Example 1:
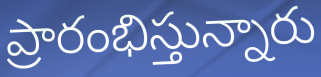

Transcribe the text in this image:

ప్రారంభిస్తున్నారు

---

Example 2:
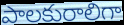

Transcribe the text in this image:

పాలకురాలిగా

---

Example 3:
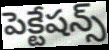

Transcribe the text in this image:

పెక్టేషన్స్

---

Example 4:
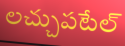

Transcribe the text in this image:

లచ్చుపటేల్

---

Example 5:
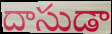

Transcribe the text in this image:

దాసుడా